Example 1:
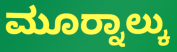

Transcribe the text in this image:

ಮೂರ‍್ನಾಲ್ಕು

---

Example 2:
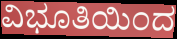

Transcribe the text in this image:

ವಿಭೂತಿಯಿಂದ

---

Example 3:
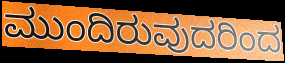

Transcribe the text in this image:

ಮುಂದಿರುವುದರಿಂದ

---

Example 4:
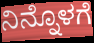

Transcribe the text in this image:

ನಿನ್ನೊಳಗೆ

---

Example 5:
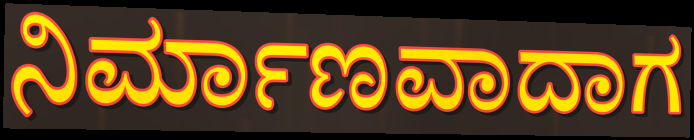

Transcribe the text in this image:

ನಿರ್ಮಾಣವಾದಾಗ